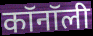
कॉनॉली